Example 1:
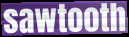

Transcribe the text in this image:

sawtooth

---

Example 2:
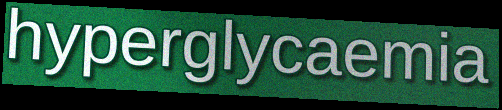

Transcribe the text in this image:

hyperglycaemia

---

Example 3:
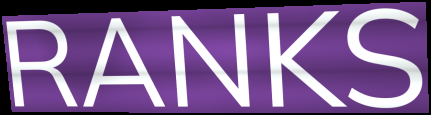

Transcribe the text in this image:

RANKS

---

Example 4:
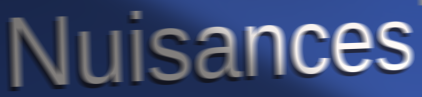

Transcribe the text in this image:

Nuisances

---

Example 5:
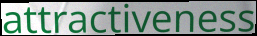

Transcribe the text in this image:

attractiveness